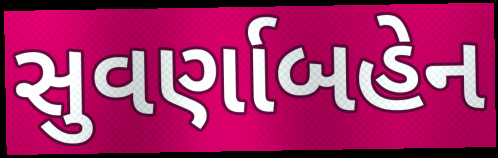
સુવર્ણાબહેન